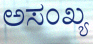
ಅಸಂಖ್ಯ